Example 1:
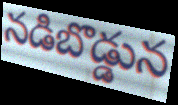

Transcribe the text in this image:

నడిబొడ్డున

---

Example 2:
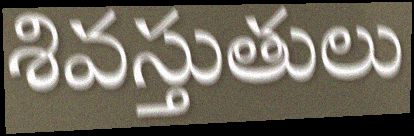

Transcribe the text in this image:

శివస్తుతులు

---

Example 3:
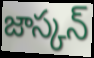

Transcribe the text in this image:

జాస్కన్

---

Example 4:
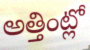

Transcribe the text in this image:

అత్తింట్లో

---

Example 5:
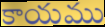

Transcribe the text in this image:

కాయము